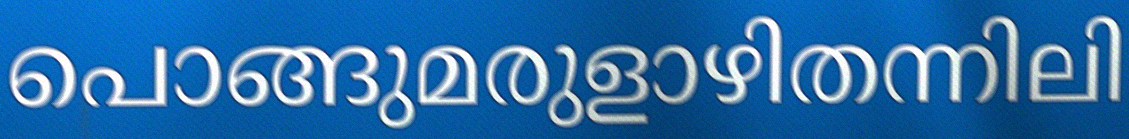
പൊങ്ങുമരുളാഴിതന്നിലി